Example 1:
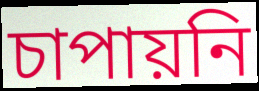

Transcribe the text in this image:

চাপায়নি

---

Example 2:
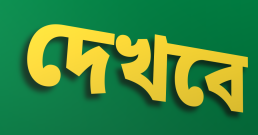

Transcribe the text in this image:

দেখবে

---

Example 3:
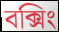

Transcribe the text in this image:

বক্সিং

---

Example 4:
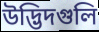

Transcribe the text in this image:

উদ্ভিদগুলি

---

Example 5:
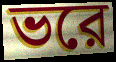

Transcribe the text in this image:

ভরে